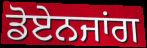
ਡੋਏਨਜਾਂਗ